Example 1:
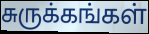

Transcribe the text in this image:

சுருக்கங்கள்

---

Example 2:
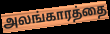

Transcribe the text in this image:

அலங்காரத்தை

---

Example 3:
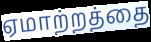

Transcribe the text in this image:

ஏமாற்றத்தை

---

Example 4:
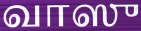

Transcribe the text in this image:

வாஸு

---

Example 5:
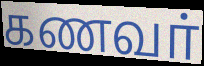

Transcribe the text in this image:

கணவர்